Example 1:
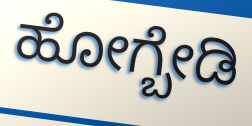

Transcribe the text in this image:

ಹೋಗ್ಬೇಡಿ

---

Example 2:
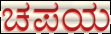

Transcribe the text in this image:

ಚಪಯ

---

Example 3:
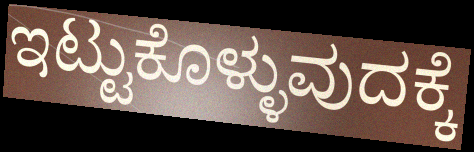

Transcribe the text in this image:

ಇಟ್ಟುಕೊಳ್ಳುವುದಕ್ಕೆ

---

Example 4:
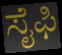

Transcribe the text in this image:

ಸೈಫಿ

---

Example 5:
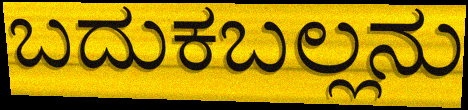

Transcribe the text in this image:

ಬದುಕಬಲ್ಲನು